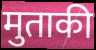
मुताकी